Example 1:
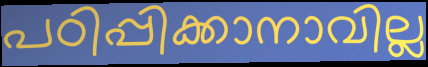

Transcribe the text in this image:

പഠിപ്പിക്കാനാവില്ല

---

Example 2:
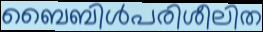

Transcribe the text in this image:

ബൈബിൾപരിശീലിത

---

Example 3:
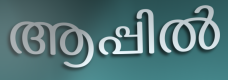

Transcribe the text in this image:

ആപ്പിൽ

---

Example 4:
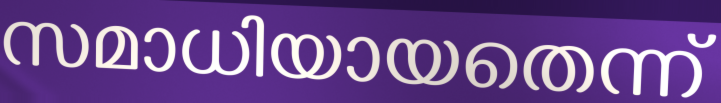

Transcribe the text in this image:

സമാധിയായതെന്ന്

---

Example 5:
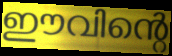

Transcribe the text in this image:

ഈവിന്റെ